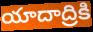
యాదాద్రికి